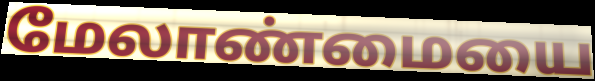
மேலாண்மையை